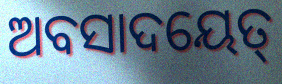
ଅବସାଦୟେତ୍